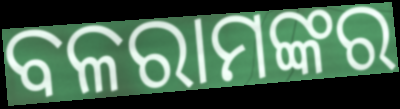
ବଳରାମଙ୍କର